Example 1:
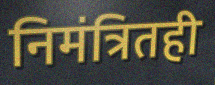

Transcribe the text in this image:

निमंत्रितही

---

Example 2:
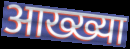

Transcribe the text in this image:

आख्ख्या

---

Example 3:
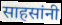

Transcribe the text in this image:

साहसांनी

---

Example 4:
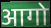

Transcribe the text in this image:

आगो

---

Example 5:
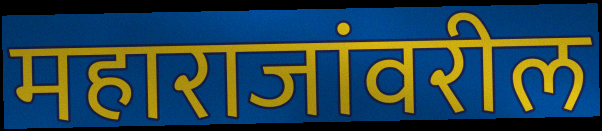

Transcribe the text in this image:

महाराजांवरील